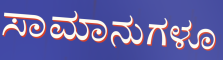
ಸಾಮಾನುಗಳೂ